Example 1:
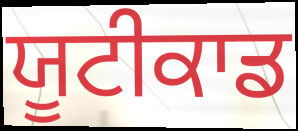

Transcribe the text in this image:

ਯੂਟੀਕਾਡ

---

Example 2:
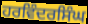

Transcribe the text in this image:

ਹਰਵਿੰਦਰਸਿੰਘ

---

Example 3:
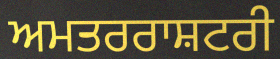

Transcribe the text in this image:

ਅਮਤਰਰਾਸ਼ਟਰੀ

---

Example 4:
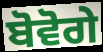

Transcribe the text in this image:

ਬੋਵੋਗੇ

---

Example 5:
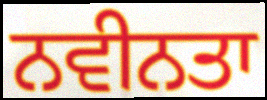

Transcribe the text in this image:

ਨਵੀਨਤਾ